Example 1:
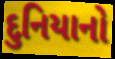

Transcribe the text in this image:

દુનિયાનો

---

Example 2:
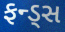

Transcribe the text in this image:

ફન્ડ્સ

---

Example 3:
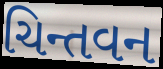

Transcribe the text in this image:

ચિન્તવન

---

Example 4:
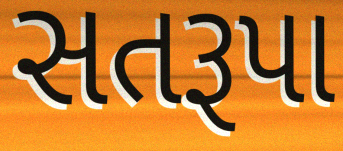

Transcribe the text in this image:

સતરૂપા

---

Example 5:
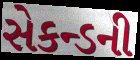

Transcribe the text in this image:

સેકન્ડની